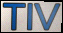
TIV